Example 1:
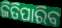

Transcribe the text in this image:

ଜିତିପାରିବ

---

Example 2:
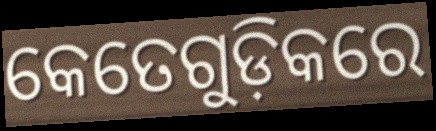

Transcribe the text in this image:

କେତେଗୁଡ଼ିକରେ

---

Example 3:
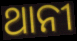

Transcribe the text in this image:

ଥାନୀ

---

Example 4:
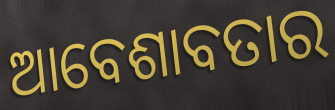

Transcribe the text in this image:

ଆବେଶାବତାର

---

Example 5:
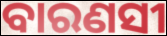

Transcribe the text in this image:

ବାରଣସୀ